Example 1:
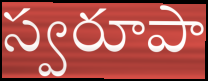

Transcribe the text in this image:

స్వరూపా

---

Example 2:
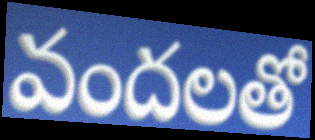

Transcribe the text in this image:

వందలతో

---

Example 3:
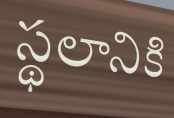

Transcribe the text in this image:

స్థలానికి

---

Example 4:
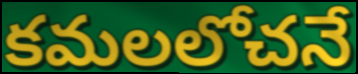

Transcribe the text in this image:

కమలలోచనే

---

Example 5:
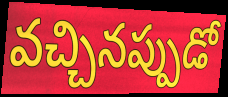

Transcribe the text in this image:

వచ్చినప్పుడో